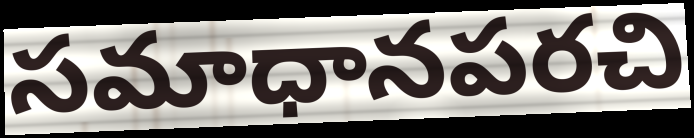
సమాధానపరచి